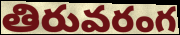
తిరువరంగ